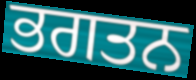
ਭਗਤਨ